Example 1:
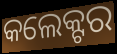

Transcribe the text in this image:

କଲେକ୍ଟର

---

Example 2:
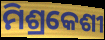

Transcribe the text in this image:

ମିଶ୍ରକେଶୀ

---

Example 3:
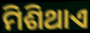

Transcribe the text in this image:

ମିଶିଥାଏ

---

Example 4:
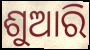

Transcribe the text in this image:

ଶୁଆରି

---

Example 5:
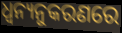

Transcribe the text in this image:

ଧ୍ଵନ୍ୟନୁକରଣରେ